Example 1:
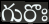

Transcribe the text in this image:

గురొః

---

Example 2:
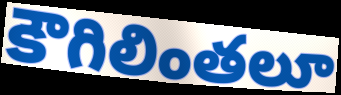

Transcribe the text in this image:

కౌగిలింతలూ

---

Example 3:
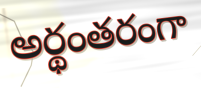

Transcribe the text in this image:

అర్థంతరంగా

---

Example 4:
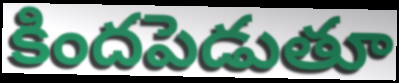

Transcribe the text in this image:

కిందపెడుతూ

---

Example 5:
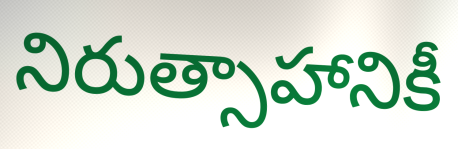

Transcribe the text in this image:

నిరుత్సాహానికీ